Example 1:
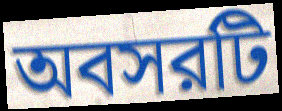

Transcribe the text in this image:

অবসরটি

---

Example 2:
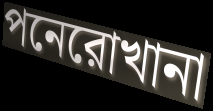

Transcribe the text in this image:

পনেরোখানা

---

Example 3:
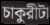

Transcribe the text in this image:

চাকুরীটা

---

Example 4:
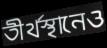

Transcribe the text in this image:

তীর্থস্থানেও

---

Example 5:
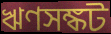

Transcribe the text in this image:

ঋণসঙ্কট